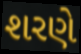
શરણે